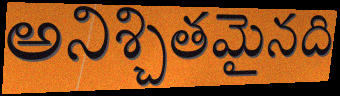
అనిశ్చితమైనది